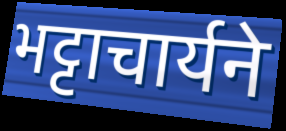
भट्टाचार्यने